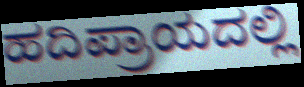
ಹದಿಪ್ರಾಯದಲ್ಲಿ